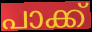
പാക്ക്